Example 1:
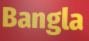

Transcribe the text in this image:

Bangla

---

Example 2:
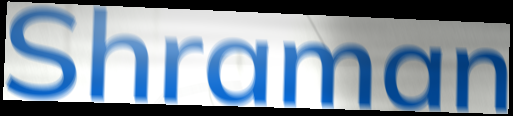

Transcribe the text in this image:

Shraman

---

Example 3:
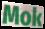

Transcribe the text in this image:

Mok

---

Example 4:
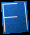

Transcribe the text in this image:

FI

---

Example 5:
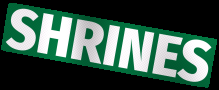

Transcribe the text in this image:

SHRINES